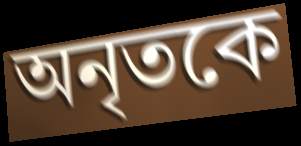
অনৃতকে